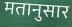
मतानुसार